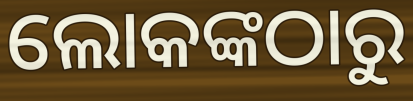
ଲୋକଙ୍କଠାରୁ